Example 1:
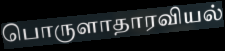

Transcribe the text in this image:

பொருளாதாரவியல்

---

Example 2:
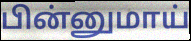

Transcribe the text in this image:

பின்னுமாய்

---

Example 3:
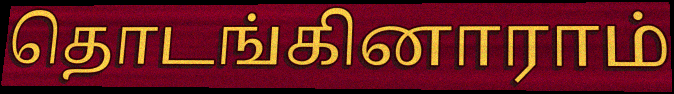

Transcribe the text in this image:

தொடங்கினாராம்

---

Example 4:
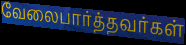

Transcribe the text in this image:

வேலைபார்த்தவர்கள்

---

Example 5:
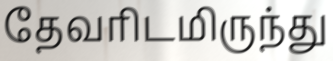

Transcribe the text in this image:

தேவரிடமிருந்து